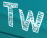
Tw